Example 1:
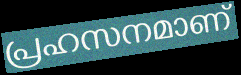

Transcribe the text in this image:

പ്രഹസനമാണ്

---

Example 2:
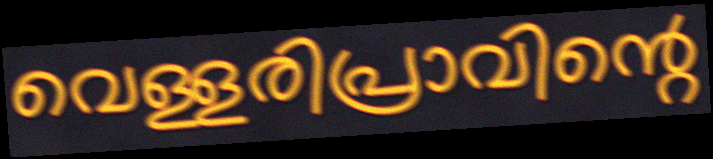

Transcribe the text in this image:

വെള്ളരിപ്രാവിന്റെ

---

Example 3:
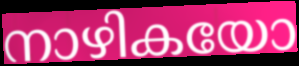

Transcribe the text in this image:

നാഴികയോ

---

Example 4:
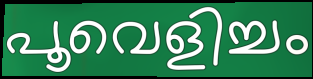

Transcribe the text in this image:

പൂവെളിച്ചം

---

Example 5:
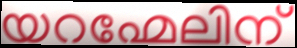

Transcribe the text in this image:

യറഹ്മേലിന്